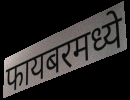
फायबरमध्ये